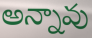
అన్నావు